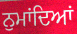
ਨੁਮਾਂਦਿਆਂ